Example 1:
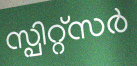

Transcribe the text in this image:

സ്പിറ്റ്സർ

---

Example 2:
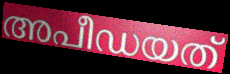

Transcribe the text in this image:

അപീഡയത്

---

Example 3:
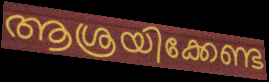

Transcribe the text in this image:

ആശ്രയിക്കേണ്ട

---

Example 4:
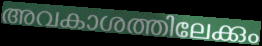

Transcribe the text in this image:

അവകാശത്തിലേക്കും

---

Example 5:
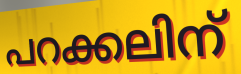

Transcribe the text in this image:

പറക്കലിന്